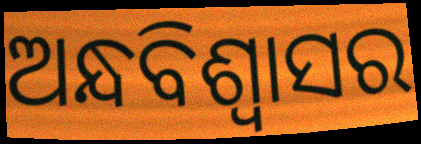
ଅନ୍ଧବିଶ୍ୱାସର